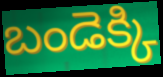
బండెక్కి